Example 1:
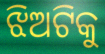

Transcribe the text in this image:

ଝିଅଟିକୁ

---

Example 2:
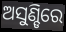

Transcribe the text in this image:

ଅସୁଣ୍ଡିରେ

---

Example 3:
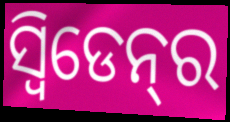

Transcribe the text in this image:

ସ୍ୱିଡେନ୍‌ର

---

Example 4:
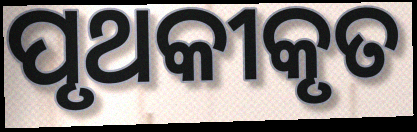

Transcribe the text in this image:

ପୃଥକୀକୃତ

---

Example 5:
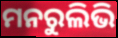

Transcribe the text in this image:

ମନରୁଲିଭି